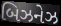
બિઝનેઝ